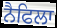
ਨੈਫਿਲਾ